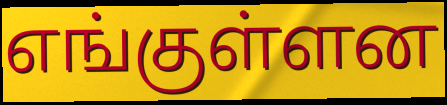
எங்குள்ளன